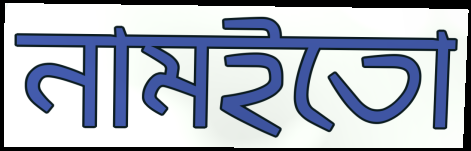
নামইতো